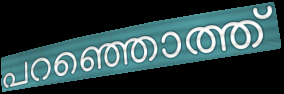
പറഞ്ഞൊത്ത്